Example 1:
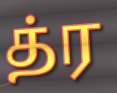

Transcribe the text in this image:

த்ர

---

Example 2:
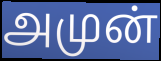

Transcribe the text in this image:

அமுன்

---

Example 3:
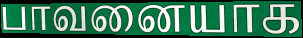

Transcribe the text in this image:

பாவனையாக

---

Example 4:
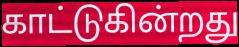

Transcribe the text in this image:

காட்டுகின்றது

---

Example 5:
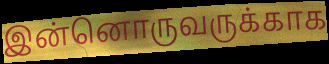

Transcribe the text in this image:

இன்னொருவருக்காக